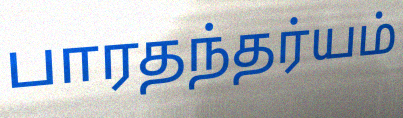
பாரதந்தர்யம்